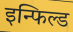
इन्फिल्ड